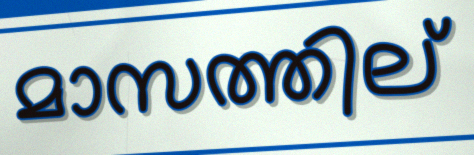
മാസത്തില്